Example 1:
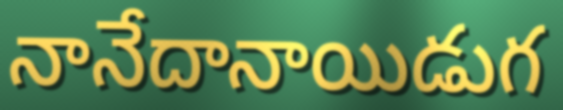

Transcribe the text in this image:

నానేదానాయిడుగ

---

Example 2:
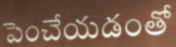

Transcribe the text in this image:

పెంచేయడంతో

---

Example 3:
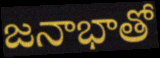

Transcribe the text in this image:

జనాభాతో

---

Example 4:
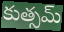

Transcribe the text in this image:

కుత్సమ్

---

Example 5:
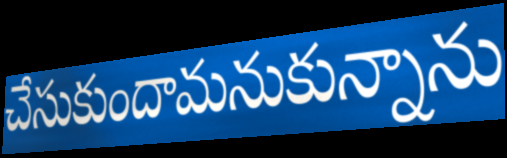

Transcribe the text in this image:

చేసుకుందామనుకున్నాను